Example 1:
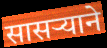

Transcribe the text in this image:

सासऱ्याने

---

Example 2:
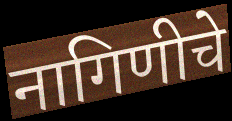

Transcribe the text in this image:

नागिणीचे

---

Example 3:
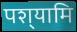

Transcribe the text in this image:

पश्यामि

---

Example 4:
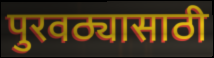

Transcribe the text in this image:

पुरवठ्यासाठी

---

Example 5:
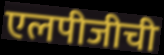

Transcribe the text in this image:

एलपीजीची